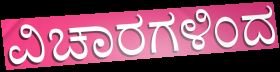
ವಿಚಾರಗಳಿಂದ